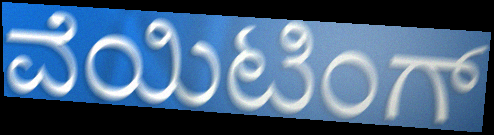
ವೆಯಿಟಿಂಗ್